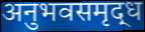
अनुभवसमृद्ध